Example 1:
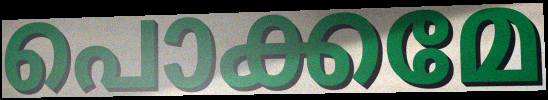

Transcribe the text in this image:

പൊക്കമേ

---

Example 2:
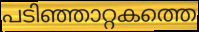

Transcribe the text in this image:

പടിഞ്ഞാറ്റകത്തെ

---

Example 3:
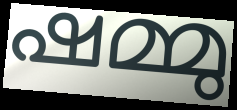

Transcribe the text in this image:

ഷമ്മു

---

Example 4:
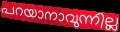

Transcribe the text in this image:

പറയാനാവുന്നില്ല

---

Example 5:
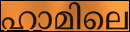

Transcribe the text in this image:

ഹാമിലെ